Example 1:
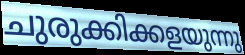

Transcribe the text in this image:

ചുരുക്കിക്കളയുന്നു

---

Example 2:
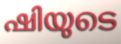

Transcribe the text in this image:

ഷിയുടെ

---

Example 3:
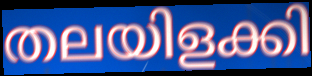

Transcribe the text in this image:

തലയിളക്കി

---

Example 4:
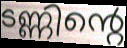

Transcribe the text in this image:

ടണ്ണിന്റെ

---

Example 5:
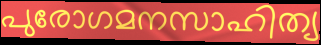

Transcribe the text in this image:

പുരോഗമനസാഹിത്യ